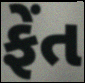
ફેંત